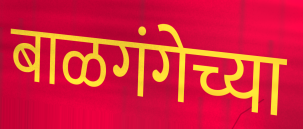
बाळगंगेच्या